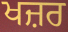
ਖਜ਼ਰ